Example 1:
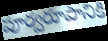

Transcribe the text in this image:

పూర్వరూపానికి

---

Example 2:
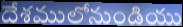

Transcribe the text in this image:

దేశములోనుండియు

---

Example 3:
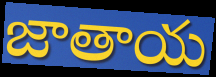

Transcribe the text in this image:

జాతాయ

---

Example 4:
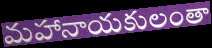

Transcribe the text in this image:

మహానాయకులంతా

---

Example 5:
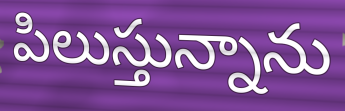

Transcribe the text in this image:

పిలుస్తున్నాను